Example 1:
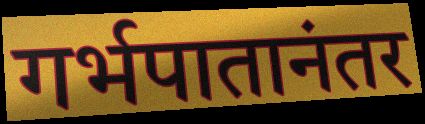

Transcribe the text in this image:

गर्भपातानंतर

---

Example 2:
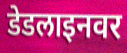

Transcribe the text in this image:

डेडलाइनवर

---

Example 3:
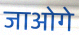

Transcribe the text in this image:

जाओगे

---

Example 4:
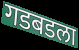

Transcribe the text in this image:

गडबडला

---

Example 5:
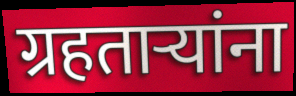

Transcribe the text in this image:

ग्रहताऱ्यांना